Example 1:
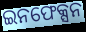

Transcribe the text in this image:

ଇନଫେକ୍ସନ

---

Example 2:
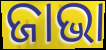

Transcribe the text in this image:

ଜାଭା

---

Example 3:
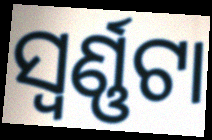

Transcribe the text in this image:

ସ୍ୱର୍ଣ୍ଣଟା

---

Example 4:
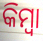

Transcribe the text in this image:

କିମ୍ବା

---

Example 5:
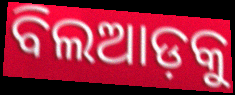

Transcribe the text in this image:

ବିଲଆଡ଼କୁ